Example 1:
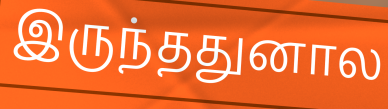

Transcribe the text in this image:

இருந்ததுனால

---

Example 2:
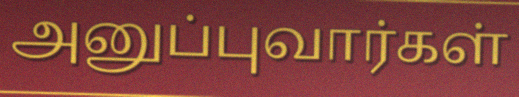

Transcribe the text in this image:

அனுப்புவார்கள்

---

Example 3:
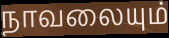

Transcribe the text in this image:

நாவலையும்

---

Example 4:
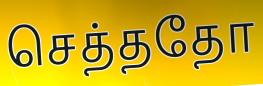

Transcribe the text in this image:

செத்ததோ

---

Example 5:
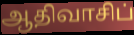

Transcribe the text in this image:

ஆதிவாசிப்